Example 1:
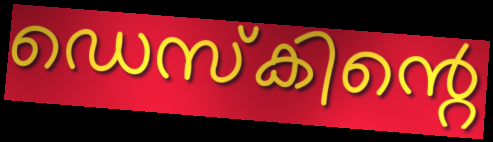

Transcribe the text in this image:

ഡെസ്കിന്റെ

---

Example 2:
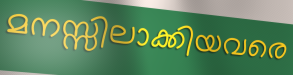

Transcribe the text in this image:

മനസ്സിലാക്കിയവരെ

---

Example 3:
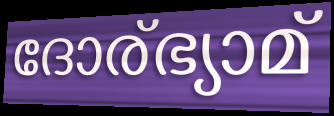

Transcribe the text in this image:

ദോര്ഭ്യാമ്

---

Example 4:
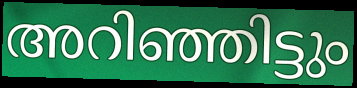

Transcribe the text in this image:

അറിഞ്ഞിട്ടും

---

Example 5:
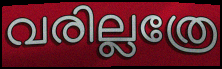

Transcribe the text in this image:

വരില്ലത്രേ